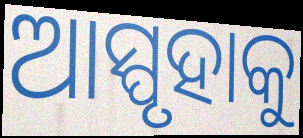
ଆସ୍ପୃହାକୁ